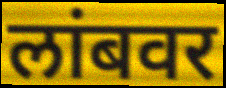
लांबवर